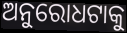
ଅନୁରୋଧଟାକୁ